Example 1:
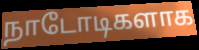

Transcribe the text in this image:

நாடோடிகளாக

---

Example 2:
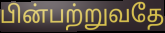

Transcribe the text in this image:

பின்பற்றுவதே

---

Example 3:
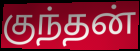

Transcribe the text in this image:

குந்தன்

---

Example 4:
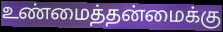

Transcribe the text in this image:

உண்மைத்தன்மைக்கு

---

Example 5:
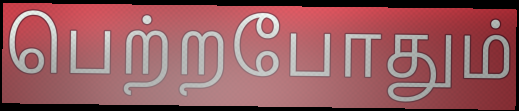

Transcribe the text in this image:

பெற்றபோதும்